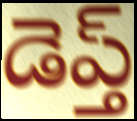
డెప్త్